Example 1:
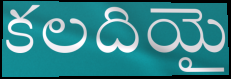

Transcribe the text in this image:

కలదియై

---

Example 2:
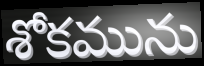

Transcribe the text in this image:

శోకమును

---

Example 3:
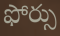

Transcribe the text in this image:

ఫోర్సు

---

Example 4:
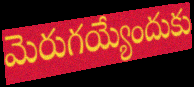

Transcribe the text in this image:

మెరుగయ్యేందుకు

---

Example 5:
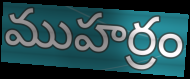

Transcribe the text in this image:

ముహర్రం